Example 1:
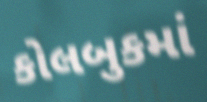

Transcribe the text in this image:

કોલબુકમાં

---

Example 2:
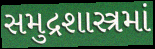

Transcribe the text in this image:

સમુદ્રશાસ્ત્રમાં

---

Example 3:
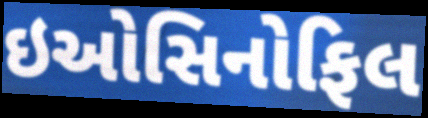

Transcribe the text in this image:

ઇઓસિનોફિલ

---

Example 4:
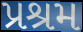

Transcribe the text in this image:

પ્રશ્રમ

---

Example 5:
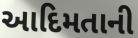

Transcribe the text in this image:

આદિમતાની